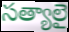
సత్యాలై